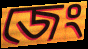
জেং